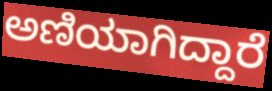
ಅಣಿಯಾಗಿದ್ದಾರೆ